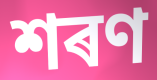
শৰণ